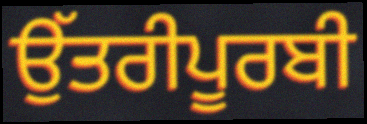
ਉੱਤਰੀਪੂਰਬੀ